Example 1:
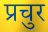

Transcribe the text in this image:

प्रचुर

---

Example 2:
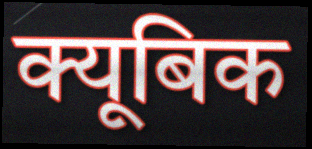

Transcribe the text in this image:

क्यूबिक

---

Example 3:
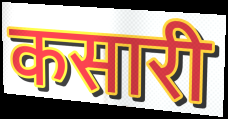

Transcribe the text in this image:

कसारी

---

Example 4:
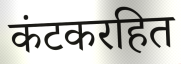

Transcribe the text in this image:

कंटकरहित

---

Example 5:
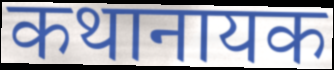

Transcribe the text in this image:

कथानायक